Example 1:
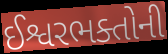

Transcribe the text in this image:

ઈશ્વરભક્તોની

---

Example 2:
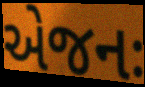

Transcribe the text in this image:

એજનઃ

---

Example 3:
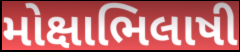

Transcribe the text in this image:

મોક્ષાભિલાષી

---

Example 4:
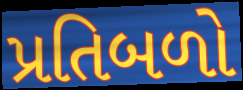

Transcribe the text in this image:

પ્રતિબળો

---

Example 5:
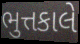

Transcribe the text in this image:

ભુત્તકાલે